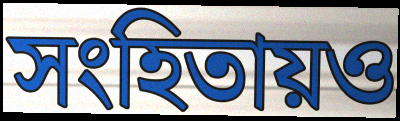
সংহিতায়ও